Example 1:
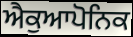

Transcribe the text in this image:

ਐਕੁਆਪੋਨਿਕ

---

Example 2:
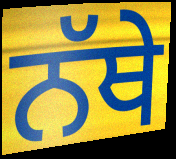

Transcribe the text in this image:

ਨੱਥੇ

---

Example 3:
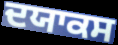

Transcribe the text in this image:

ਦਯਾਕਸ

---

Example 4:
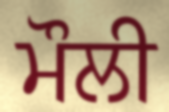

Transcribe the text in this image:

ਮੌਲੀ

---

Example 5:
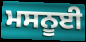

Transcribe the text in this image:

ਮਸਨੂਈ